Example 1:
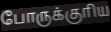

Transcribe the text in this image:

போருக்குரிய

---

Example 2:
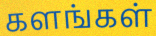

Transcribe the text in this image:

களங்கள்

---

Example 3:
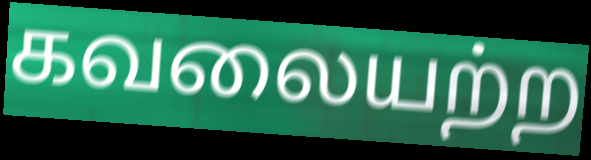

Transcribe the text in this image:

கவலையற்ற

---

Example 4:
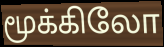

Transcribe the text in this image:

மூக்கிலோ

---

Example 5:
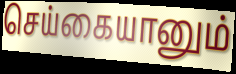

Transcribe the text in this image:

செய்கையானும்